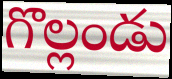
గొల్లండు